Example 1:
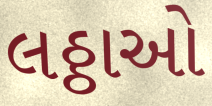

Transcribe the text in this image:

લઠ્ઠાઓ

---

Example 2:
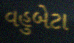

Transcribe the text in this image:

વહુબેટા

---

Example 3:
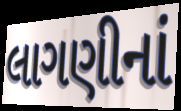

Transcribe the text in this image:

લાગણીનાં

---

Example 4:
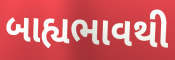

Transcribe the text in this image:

બાહ્યભાવથી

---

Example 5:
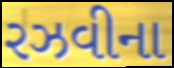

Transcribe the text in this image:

રઝવીના